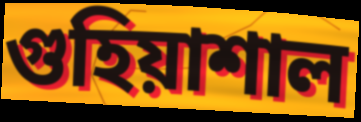
গুহিয়াশাল